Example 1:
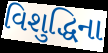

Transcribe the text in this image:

વિશુદ્ધિના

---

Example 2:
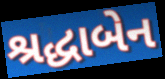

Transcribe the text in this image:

શ્રદ્ધાબેન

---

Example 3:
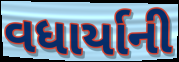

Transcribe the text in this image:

વધાર્યાની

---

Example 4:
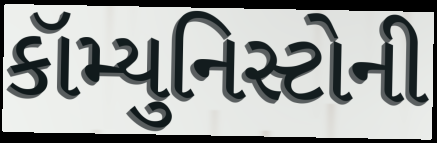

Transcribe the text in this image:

કૉમ્યુનિસ્ટોની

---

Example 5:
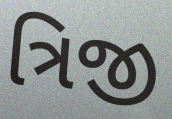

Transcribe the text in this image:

ત્રિજી